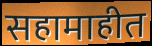
सहामाहीत